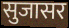
सुजासर